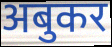
अबुकर